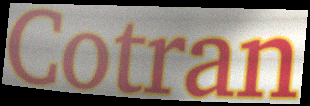
Cotran